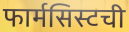
फार्मसिस्टची